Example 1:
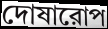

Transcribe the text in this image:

দোষারোপ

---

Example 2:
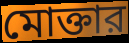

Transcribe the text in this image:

মোক্তার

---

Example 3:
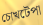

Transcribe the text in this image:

চোখটেপা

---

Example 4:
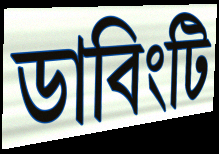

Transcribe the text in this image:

ডাবিংটি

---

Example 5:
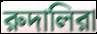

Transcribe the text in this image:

রুদালিরা